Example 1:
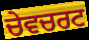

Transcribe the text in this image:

ਚੇਵਚਰਟ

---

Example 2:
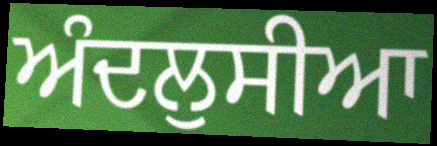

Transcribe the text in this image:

ਅੰਦਲੁਸੀਆ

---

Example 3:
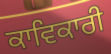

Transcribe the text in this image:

ਕਾਵਿਕਾਰੀ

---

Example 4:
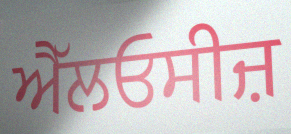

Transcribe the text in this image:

ਐੱਲਓਸੀਜ਼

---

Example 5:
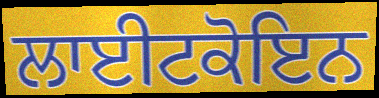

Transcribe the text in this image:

ਲਾਈਟਕੋਇਨ